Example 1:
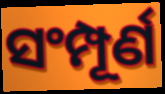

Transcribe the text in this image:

ସଂମ୍ପୂର୍ଣ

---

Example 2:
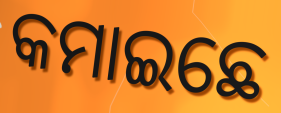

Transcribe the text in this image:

କମାଇଛେ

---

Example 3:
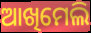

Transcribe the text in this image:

ଆଖିମେଲି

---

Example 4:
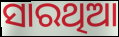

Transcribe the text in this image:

ସାରଥିଆ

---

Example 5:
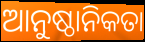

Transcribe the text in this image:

ଆନୁଷ୍ଠାନିକତା